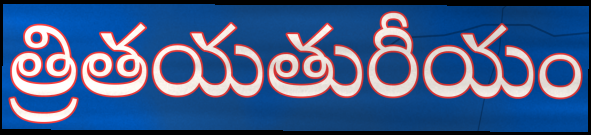
త్రితయతురీయం